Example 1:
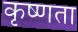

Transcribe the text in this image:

कृष्णता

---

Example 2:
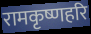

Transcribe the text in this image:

रामकृष्णहरि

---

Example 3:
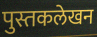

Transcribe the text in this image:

पुस्तकलेखन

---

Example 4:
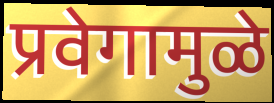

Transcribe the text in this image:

प्रवेगामुळे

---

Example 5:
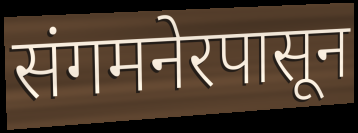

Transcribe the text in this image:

संगमनेरपासून